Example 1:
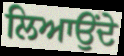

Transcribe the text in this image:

ਲਿਆਉੁਂਦੇ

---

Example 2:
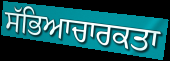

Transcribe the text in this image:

ਸੱਭਿਆਚਾਰਕਤਾ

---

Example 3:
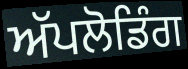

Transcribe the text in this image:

ਅੱਪਲੋਡਿੰਗ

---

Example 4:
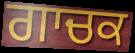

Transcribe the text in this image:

ਗਾਚਕ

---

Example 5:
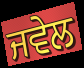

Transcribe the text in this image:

ਜਵੇਲ